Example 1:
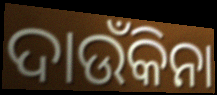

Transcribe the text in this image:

ଦାଉଁକିନା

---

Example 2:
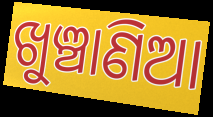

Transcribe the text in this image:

ଖୁଞ୍ଚାଣିଆ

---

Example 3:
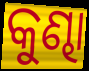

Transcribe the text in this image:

କୁଣ୍ଢା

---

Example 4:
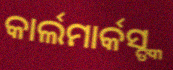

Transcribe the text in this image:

କାର୍ଲମାର୍କସ୍ଙ୍କ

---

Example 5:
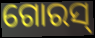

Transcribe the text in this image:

ଗୋରସ୍